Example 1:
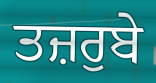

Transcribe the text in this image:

ਤਜ਼ਰੁਬੇ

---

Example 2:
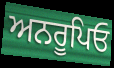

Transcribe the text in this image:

ਅਨਰੂਪਿਓ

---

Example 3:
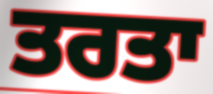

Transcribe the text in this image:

ਤਰਤਾ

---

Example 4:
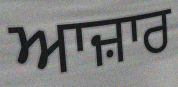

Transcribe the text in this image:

ਆਜ਼ਾਰ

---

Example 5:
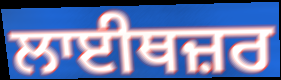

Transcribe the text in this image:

ਲਾਈਥਜ਼ਰ